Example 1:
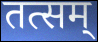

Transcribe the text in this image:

तत्सम्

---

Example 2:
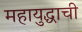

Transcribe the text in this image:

महायुद्धाची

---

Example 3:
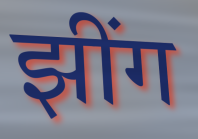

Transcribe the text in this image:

झींग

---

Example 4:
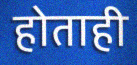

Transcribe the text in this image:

होताही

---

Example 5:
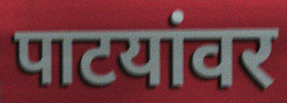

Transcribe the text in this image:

पाटयांवर